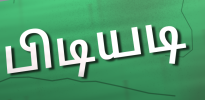
பிடியடி